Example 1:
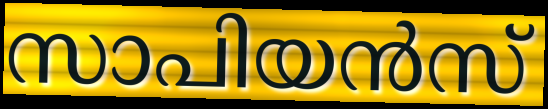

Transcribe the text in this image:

സാപിയൻസ്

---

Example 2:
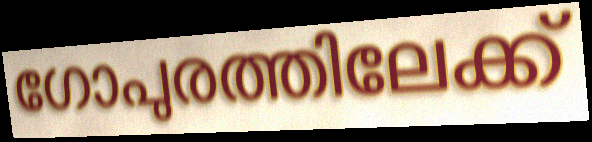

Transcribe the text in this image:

ഗോപുരത്തിലേക്ക്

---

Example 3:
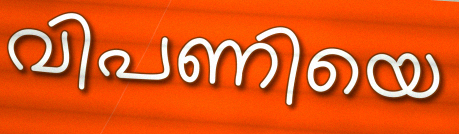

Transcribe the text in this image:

വിപണിയെ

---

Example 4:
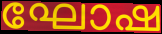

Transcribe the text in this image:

ഘോഷ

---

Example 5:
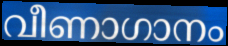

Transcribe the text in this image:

വീണാഗാനം